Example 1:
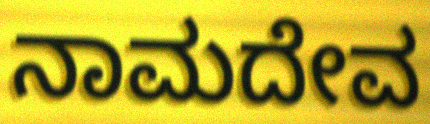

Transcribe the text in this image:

ನಾಮದೇವ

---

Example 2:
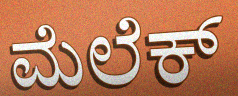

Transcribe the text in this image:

ಮೆಲೆಕ್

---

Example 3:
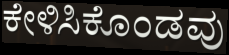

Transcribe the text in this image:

ಕೇಳಿಸಿಕೊಂಡವು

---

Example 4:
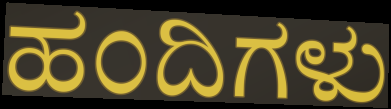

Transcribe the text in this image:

ಹಂದಿಗಳು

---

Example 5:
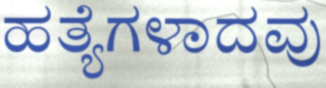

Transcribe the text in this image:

ಹತ್ಯೆಗಳಾದವು